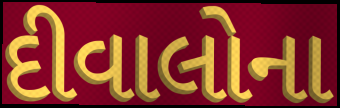
દીવાલોના